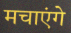
मचाएंगे